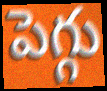
పెగ్గు